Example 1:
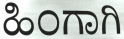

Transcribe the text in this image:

ಹಿಂಗಾಗಿ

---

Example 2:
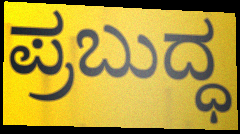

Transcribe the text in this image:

ಪ್ರಬುದ್ಧ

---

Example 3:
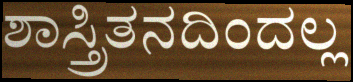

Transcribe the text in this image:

ಶಾಸ್ತ್ರಿತನದಿಂದಲ್ಲ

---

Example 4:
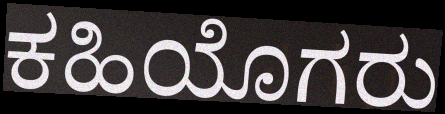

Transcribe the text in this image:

ಕಹಿಯೊಗರು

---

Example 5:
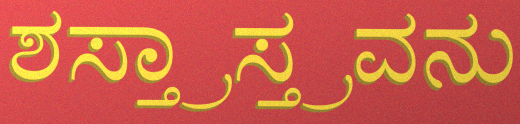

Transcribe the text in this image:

ಶಸ್ತ್ರಾಸ್ತ್ರವನು